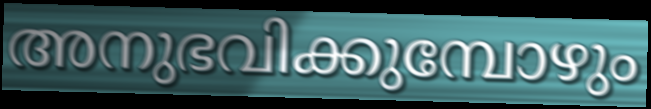
അനുഭവിക്കുമ്പോഴും